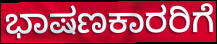
ಭಾಷಣಕಾರರಿಗೆ